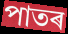
পাতৰ